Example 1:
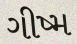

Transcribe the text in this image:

ગીષ્મ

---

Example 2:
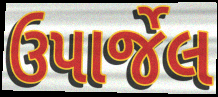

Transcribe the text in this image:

ઉપાર્જેલ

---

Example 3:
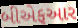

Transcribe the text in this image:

બીએફઆર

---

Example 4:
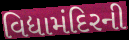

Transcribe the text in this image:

વિદ્યામંદિરની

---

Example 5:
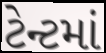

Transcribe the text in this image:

ટેન્ટમાં